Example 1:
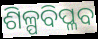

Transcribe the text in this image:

ଶିଳ୍ପବିପ୍ଳବ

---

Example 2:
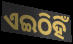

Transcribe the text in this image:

ଏଇଠିହିଁ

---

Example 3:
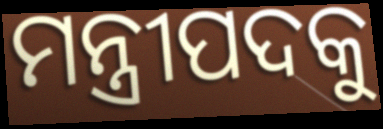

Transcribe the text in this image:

ମନ୍ତ୍ରୀପଦକୁ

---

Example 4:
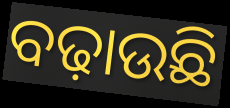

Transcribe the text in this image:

ବଢ଼ାଉଛି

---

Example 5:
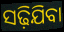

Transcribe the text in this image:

ସଢ଼ିଯିବା